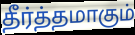
தீர்த்தமாகும்